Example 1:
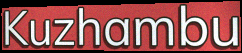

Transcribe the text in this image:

Kuzhambu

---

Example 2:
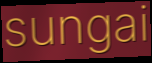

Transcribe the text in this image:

sungai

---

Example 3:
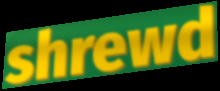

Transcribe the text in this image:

shrewd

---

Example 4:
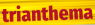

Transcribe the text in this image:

trianthema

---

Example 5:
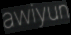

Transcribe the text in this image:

awiyun